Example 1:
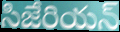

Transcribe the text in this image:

సిజేరియన్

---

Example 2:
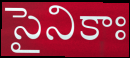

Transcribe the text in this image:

సైనికాః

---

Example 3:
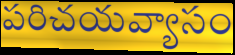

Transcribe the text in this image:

పరిచయవ్యాసం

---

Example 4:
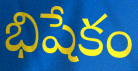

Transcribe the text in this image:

భిషేకం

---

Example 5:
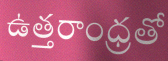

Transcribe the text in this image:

ఉత్తరాంధ్రతో